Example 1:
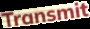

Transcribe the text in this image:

Transmit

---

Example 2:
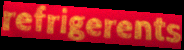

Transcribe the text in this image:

refrigerents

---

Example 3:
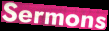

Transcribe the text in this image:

Sermons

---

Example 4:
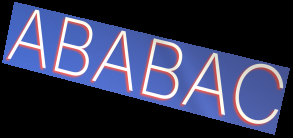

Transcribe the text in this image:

ABABAC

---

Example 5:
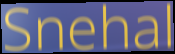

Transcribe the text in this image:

Snehal